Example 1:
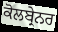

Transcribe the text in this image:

ਕੋਲਬ੍ਰੇਨਰ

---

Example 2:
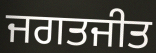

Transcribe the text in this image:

ਜਗਤਜੀਤ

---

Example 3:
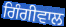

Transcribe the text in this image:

ਗਿੰਗੀਵਾਲ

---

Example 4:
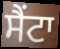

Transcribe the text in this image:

ਸੈਂਟਾ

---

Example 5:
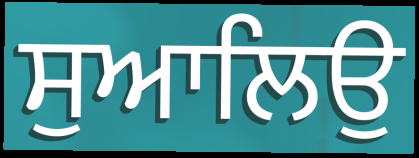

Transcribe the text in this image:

ਸੁਆਲਿਉ